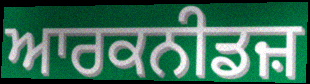
ਆਰਕਨੀਡਜ਼